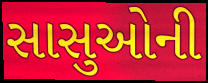
સાસુઓની